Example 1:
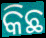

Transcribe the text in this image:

କିଛ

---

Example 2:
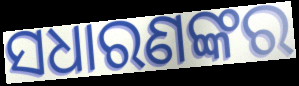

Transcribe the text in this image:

ସଧାରଣଙ୍କର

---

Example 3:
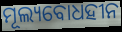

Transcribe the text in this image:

ମୂଲ୍ୟବୋଧହୀନ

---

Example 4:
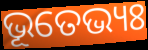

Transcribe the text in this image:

ଭୂତେଭ୍ୟଃ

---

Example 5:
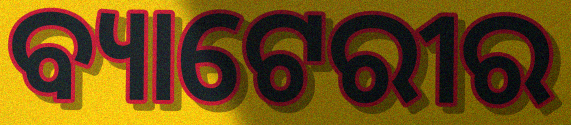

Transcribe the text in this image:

ବ୍ୟାଟେରୀର